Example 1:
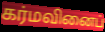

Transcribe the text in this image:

கர்மவினைப்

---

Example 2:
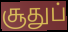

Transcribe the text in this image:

சூதுப்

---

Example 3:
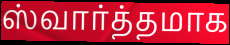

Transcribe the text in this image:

ஸ்வார்த்தமாக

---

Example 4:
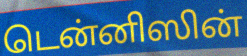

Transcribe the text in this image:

டென்னிஸின்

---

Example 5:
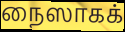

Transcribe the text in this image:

நைஸாகக்